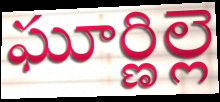
ఘూర్ణిల్లె